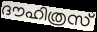
ദൗഹിത്രസ്